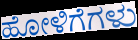
ಹೋಳಿಗೆಗಳು